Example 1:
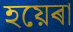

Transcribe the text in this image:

হয়েৰা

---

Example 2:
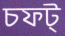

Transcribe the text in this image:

চফট্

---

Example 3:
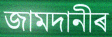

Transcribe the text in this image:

জামদানীৰ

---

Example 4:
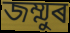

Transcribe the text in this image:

জম্মুৰ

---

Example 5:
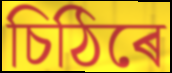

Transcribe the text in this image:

চিঠিৰে